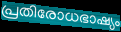
പ്രതിരോധഭാഷ്യം